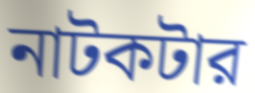
নাটকটার